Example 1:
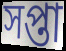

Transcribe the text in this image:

সপ্তা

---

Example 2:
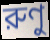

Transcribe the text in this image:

রুণু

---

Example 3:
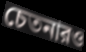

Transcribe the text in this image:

চেতনারও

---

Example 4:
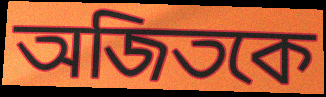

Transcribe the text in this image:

অজিতকে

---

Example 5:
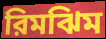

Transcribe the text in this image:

রিমঝিম